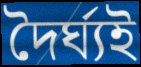
দৈৰ্ঘ্যই